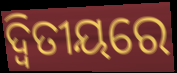
ଦ୍ୱିତୀୟରେ